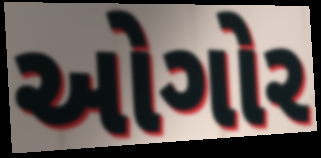
ઓગોર